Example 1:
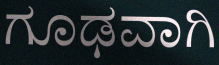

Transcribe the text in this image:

ಗೂಢವಾಗಿ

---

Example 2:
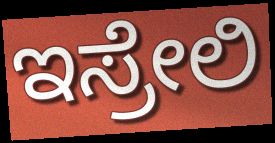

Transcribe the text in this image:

ಇಸ್ರೇಲಿ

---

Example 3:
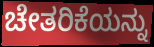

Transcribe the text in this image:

ಚೇತರಿಕೆಯನ್ನು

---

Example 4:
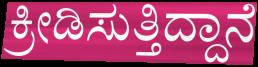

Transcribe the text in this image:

ಕ್ರೀಡಿಸುತ್ತಿದ್ದಾನೆ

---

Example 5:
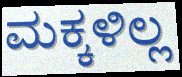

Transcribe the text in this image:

ಮಕ್ಕಳಿಲ್ಲ